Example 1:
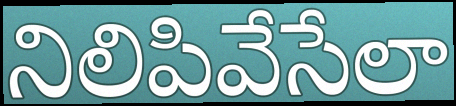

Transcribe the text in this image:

నిలిపివేసేలా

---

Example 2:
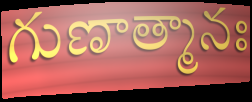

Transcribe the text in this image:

గుణాత్మానః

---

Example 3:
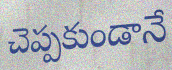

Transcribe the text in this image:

చెప్పకుండానే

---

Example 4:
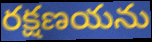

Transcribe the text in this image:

రక్షణయను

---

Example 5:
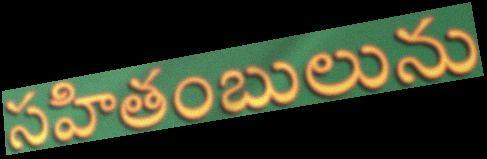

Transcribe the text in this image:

సహితంబులును